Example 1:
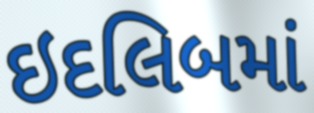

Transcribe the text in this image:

ઇદલિબમાં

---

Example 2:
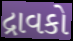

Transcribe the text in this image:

દ્રાવકો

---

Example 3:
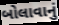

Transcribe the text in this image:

બોલાવાનું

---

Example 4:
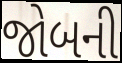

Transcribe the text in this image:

જોબની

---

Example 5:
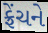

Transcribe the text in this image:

ફ્રેંચને